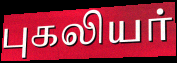
புகலியர்